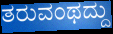
ತರುವಂಥದ್ದು